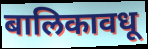
बालिकावधू